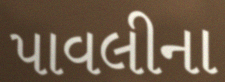
પાવલીના